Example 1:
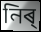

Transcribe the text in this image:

নিৰ্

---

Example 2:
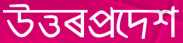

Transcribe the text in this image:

উত্তৰপ্ৰদেশ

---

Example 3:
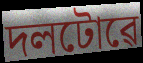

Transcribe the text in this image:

দলটোৱে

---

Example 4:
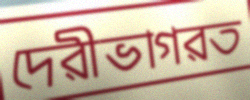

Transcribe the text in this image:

দেৱীভাগৱত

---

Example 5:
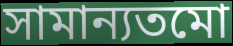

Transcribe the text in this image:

সামান্যতমো